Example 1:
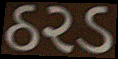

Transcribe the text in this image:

ઠરડ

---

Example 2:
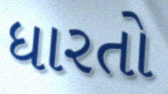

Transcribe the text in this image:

ધારતો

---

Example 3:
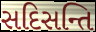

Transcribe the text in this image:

સદિસન્તિ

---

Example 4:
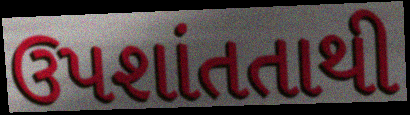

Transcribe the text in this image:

ઉપશાંતતાથી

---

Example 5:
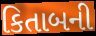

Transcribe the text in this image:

કિતાબની